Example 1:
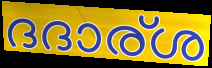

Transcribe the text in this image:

ദദാര്ശ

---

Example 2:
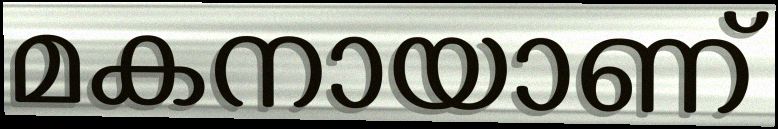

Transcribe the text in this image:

മകനായാണ്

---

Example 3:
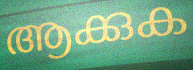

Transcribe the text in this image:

ആക്കുക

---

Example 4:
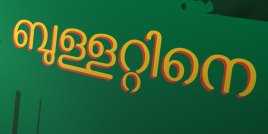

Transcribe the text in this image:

ബുള്ളറ്റിനെ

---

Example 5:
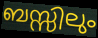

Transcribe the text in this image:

ബസ്സിലും